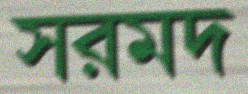
সরমদ